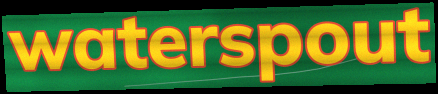
waterspout